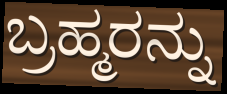
ಬ್ರಹ್ಮರನ್ನು